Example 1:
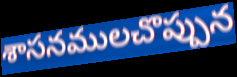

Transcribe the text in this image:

శాసనములచొప్పున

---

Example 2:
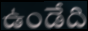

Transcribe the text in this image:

ఉండేది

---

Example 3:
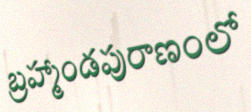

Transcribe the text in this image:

బ్రహ్మాండపురాణంలో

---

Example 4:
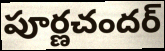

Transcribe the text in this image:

పూర్ణచందర్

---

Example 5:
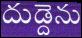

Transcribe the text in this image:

దుడ్దెను